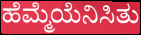
ಹೆಮ್ಮೆಯೆನಿಸಿತು